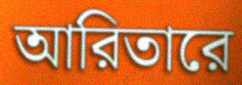
আরিতারে